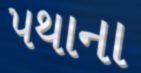
પથાના